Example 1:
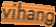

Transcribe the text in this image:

vihang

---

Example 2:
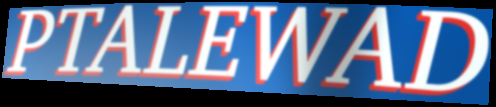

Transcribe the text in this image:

PTALEWAD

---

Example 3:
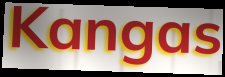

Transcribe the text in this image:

Kangas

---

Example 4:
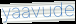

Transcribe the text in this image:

yaavude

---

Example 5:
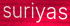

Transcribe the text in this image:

suriyas